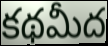
కథమీద